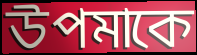
উপমাকে